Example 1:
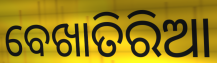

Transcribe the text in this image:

ବେଖାତିରିଆ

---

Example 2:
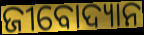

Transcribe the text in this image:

ଜୀବୋଦ୍ୟାନ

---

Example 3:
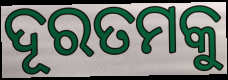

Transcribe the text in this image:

ଦୂରତମକୁ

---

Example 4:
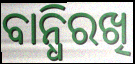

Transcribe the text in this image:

ବାନ୍ଧିରଖି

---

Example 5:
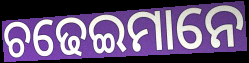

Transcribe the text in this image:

ଚଢେଇମାନେ